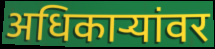
अधिकाऱ्यांवर